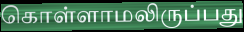
கொள்ளாமலிருப்பது